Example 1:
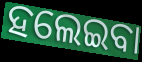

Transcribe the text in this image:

ହଲେଇବା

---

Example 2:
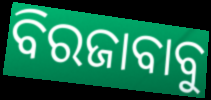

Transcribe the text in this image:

ବିରଜାବାବୁ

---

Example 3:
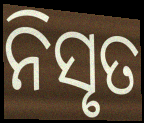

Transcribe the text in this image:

ନିସୃତ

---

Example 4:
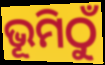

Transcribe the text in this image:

ଭୂମିଠୁଁ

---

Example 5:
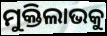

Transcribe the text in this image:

ମୁକ୍ତିଲାଭକୁ